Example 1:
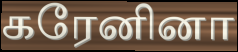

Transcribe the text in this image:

கரேனினா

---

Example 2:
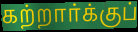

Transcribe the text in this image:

கற்றார்க்குப்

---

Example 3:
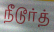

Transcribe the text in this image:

நீடூர்த்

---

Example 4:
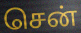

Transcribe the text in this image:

சென்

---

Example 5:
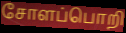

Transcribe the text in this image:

சோளப்பொறி